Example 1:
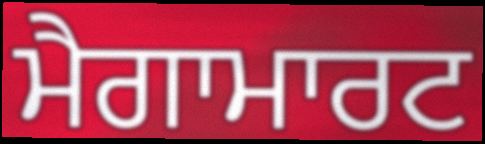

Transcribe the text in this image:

ਮੈਗਾਮਾਰਟ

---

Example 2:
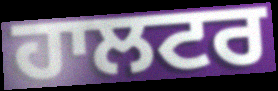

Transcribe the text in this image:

ਹਾਲਟਰ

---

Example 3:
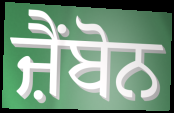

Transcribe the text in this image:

ਜ਼ੈਂਬੋਨ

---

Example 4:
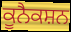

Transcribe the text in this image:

ਕੂਨੈਕਸ਼ਨ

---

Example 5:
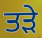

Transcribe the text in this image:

ਤੜੇ